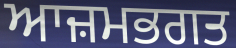
ਆਜ਼ਮਭਗਤ